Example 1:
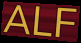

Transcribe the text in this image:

ALF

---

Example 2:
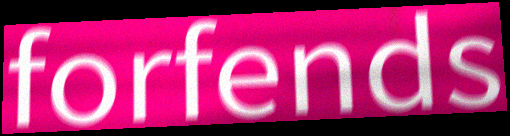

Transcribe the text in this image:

forfends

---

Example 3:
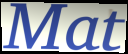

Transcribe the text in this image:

Mat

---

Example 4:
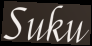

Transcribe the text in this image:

Suku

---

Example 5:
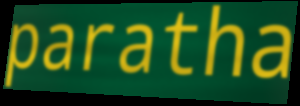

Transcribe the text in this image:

paratha